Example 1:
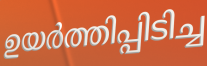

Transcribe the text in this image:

ഉയർത്തിപ്പിടിച്ച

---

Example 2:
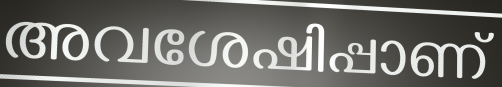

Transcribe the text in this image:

അവശേഷിപ്പാണ്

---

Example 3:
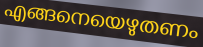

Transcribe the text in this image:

എങ്ങനെയെഴുതണം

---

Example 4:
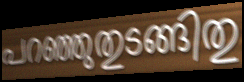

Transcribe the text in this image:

പറഞ്ഞുതുടങ്ങിതു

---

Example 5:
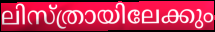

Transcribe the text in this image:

ലിസ്ത്രായിലേക്കും